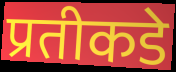
प्रतीकडे